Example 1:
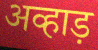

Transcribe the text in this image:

अव्हाड़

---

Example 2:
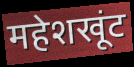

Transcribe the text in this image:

महेशखूंट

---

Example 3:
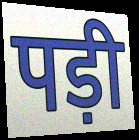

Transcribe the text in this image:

पड़ी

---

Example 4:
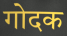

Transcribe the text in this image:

गोदक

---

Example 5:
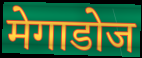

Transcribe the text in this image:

मेगाडोज